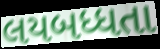
લયબધ્ધતા